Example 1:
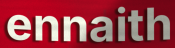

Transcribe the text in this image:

ennaith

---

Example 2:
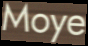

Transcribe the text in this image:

Moye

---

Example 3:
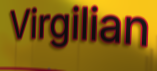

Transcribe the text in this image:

Virgilian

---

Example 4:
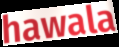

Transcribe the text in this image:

hawala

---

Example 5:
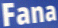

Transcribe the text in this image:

Fana